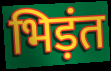
भिड़ंत